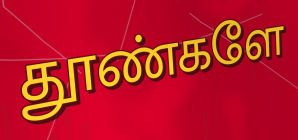
தூண்களே